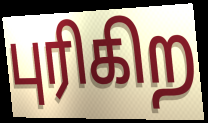
புரிகிற